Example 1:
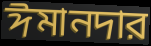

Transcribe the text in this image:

ঈমানদার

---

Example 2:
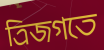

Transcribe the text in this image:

ত্রিজগতে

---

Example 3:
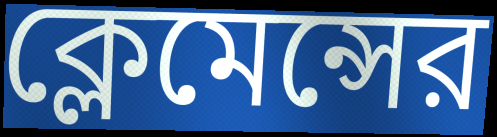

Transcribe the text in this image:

ক্লেমেন্সের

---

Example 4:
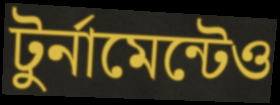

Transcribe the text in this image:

টুর্নামেন্টেও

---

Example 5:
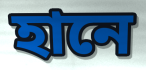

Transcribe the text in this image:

হানে